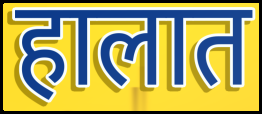
हालात